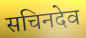
सचिनदेव